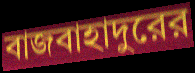
বাজবাহাদুরের